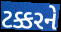
ટક્કરને